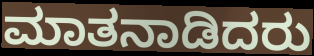
ಮಾತನಾಡಿದರು